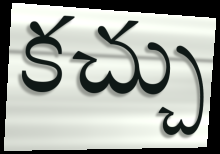
కచ్చు